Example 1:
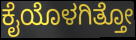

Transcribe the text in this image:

ಕೈಯೊಳಗಿತ್ತೋ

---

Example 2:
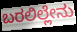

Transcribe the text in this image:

ಬರಲಿಲ್ಲೇನು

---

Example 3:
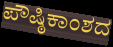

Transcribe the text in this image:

ಪೌಷ್ಠಿಕಾಂಶದ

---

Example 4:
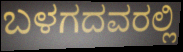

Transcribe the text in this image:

ಬಳಗದವರಲ್ಲಿ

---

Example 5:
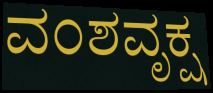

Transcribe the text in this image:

ವಂಶವೃಕ್ಷ